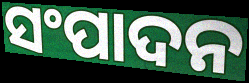
ସଂପାଦନ